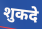
शुकदे